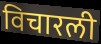
विचारली